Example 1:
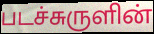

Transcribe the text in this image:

படச்சுருளின்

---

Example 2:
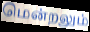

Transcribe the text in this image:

மென்றலும்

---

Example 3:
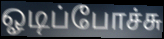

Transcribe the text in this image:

ஓடிப்போச்சு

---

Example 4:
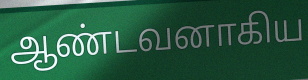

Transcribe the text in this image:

ஆண்டவனாகிய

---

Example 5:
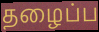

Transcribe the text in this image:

தழைப்ப